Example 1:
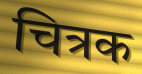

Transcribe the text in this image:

चित्रक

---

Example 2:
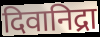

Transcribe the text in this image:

दिवानिद्रा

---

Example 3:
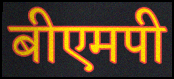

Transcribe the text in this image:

बीएमपी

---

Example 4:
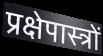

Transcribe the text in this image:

प्रक्षेपास्त्रों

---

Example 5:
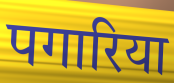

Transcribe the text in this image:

पगारिया